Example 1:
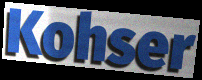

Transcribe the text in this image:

Kohser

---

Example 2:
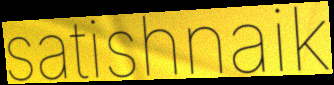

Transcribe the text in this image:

satishnaik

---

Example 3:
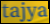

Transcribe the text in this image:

tajya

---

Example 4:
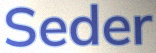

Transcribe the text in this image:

Seder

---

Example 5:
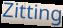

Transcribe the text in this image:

Zitting